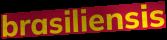
brasiliensis